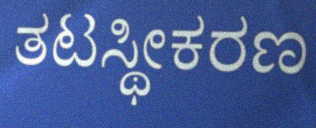
ತಟಸ್ಥೀಕರಣ